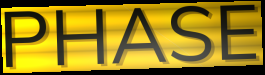
PHASE